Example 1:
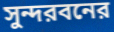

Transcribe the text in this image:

সুন্দরবনের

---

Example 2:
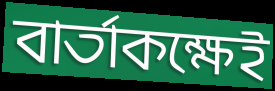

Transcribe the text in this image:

বার্তাকক্ষেই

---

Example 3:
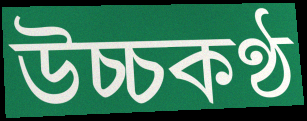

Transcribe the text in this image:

উচ্চকণ্ঠ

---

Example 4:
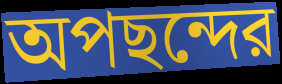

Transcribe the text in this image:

অপছন্দের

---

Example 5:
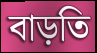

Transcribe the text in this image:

বাড়তি